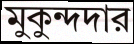
মুকুন্দদার